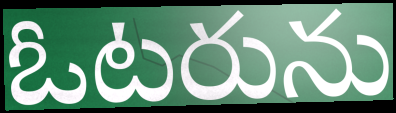
ఓటరును